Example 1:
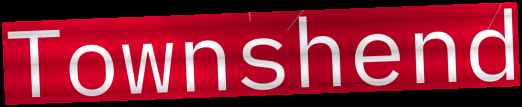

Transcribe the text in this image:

Townshend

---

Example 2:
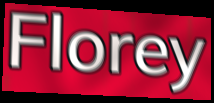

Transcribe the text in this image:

Florey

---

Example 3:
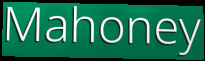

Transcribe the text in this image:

Mahoney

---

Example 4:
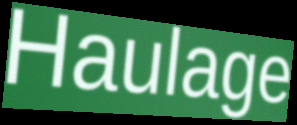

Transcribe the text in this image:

Haulage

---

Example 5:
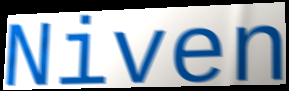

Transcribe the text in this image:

Niven